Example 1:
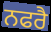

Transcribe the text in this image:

ਨਫਰੈ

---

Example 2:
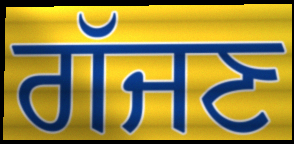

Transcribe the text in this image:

ਗੱਜਣ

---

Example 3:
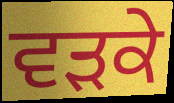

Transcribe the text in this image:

ਵੜਕੇ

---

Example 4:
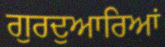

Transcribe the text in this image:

ਗੁਰਦੁਆਰਿਆਂ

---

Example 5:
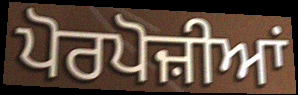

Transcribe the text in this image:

ਪੋਰਪੋਜ਼ੀਆਂ